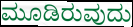
ಮೂಡಿರುವುದು